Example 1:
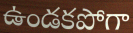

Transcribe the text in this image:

ఉండకపోగా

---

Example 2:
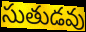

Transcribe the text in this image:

సుతుడవు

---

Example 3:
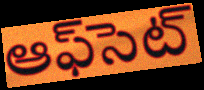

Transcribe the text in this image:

ఆఫ్‌సెట్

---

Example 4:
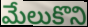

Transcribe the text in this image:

మేలుకొని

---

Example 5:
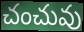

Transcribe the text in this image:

చంచువు